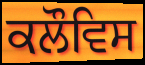
ਕਲੌਵਿਸ